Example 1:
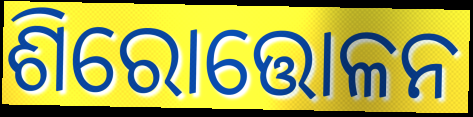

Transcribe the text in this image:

ଶିରୋତ୍ତୋଳନ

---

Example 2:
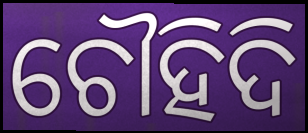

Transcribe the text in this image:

ଚୌହିଦି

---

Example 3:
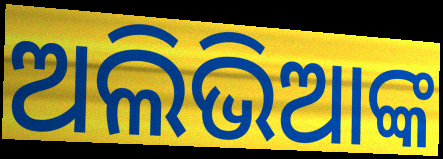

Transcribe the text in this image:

ଅଲିଭିଆଙ୍କ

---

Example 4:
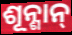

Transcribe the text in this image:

ଶୂନ୍ଶାନ୍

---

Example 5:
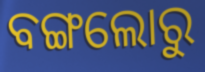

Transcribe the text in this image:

ବଙ୍ଗଲୋରୁ